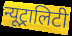
न्यूट्रालिटी